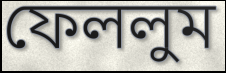
ফেললুম